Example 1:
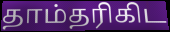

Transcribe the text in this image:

தாம்தரிகிட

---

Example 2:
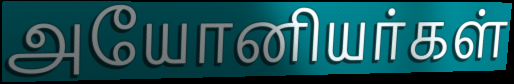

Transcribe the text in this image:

அயோனியர்கள்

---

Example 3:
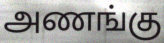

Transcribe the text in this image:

அணங்கு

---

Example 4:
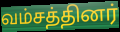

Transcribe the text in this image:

வம்சத்தினர்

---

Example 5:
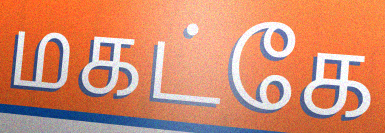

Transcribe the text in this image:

மகட்கே